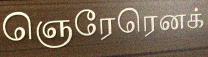
ஞெரேரெனக்